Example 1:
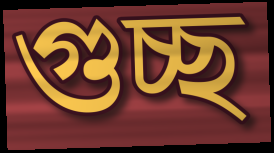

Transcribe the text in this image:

গুচ্ছ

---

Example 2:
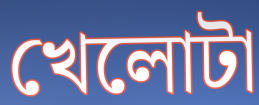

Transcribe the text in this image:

খেলোটা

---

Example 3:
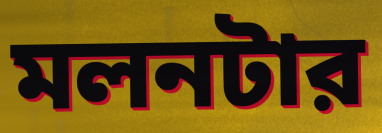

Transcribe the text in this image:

মলনটার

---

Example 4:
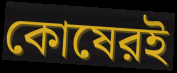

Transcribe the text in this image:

কোষেরই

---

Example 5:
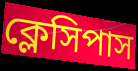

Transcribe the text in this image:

ক্লেসিপাস